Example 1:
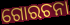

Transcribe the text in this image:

ଗୋରଚନା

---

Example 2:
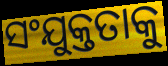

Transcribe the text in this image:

ସଂଯୁକ୍ତତାକୁ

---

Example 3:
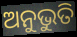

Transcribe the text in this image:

ଅନୁଭୁତି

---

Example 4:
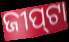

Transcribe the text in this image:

ଜୀପ୍‍ଟା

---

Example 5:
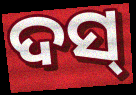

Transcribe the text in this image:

ଦସ୍